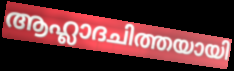
ആഹ്ലാദചിത്തയായി